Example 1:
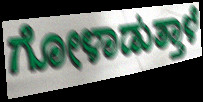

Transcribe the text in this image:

ಗೋಳಾಡುತ್ತಾಳೆ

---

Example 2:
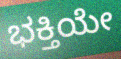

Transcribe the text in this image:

ಭಕ್ತಿಯೇ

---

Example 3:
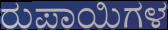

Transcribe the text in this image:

ರುಪಾಯಿಗಳ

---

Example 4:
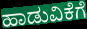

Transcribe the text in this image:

ಹಾಡುವಿಕೆಗೆ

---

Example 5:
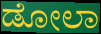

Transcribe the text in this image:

ಡೋಲಾ